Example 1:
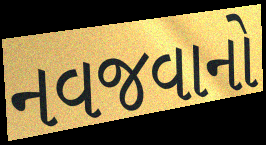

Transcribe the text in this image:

નવજવાનો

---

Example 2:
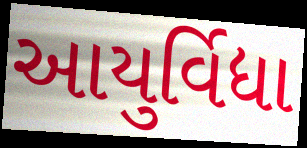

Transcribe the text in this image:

આયુર્વિદ્યા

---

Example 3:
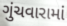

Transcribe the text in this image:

ગુંચવારામાં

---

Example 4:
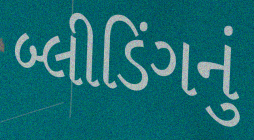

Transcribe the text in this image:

બ્લીડિંગનું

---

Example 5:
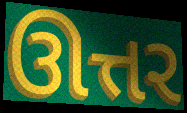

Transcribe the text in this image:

ઊત્તર